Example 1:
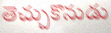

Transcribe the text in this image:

తెచ్చుకొనుడు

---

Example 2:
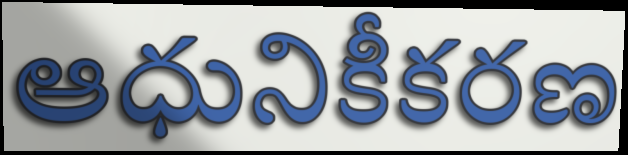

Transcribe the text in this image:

ఆధునికీకరణ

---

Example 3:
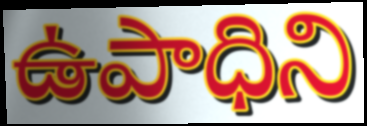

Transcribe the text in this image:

ఉపాధిని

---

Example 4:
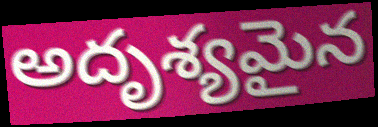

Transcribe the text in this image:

అదృశ్యమైన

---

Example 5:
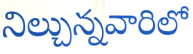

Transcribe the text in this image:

నిల్చున్నవారిలో